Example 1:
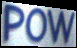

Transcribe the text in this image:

POW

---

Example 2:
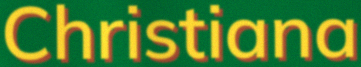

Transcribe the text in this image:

Christiana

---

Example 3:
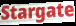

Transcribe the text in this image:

Stargate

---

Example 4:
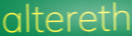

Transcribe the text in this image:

altereth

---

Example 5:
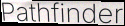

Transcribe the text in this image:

Pathfinder